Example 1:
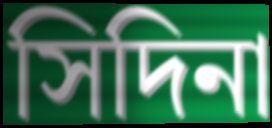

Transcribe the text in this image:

সিদিনা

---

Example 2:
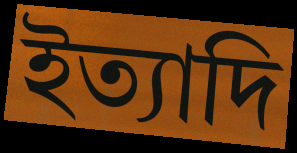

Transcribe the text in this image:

ইত্য়াদি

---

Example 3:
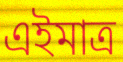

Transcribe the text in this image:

এইমাত্ৰ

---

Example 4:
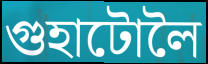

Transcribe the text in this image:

গুহাটোলৈ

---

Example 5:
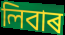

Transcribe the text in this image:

লিবাৰ